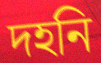
দহনি